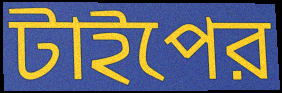
টাইপের